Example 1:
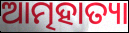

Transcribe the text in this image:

ଆତ୍ମହାତ୍ୟା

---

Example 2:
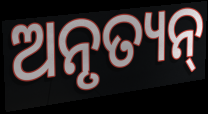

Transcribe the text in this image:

ଅନୃତ୍ୟନ୍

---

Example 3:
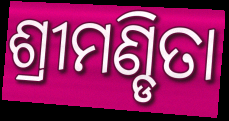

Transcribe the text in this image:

ଶ୍ରୀମଣ୍ଡିତା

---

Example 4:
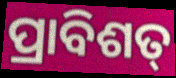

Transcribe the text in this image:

ପ୍ରାବିଶତ୍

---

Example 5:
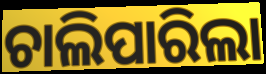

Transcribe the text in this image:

ଚାଲିପାରିଲା